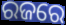
ରଜରେ